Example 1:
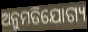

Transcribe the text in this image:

ଅନୁମତିଯୋଗ୍ୟ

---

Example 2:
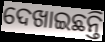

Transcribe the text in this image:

ଦେଖାଇଛନ୍ତି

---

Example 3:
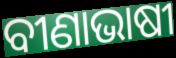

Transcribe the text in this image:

ବୀଣାଭାଷୀ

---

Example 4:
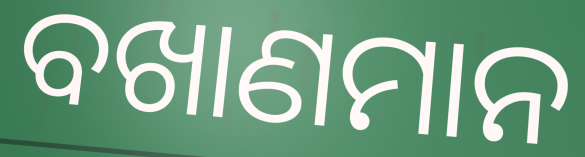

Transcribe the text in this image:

ବଖାଣମାନ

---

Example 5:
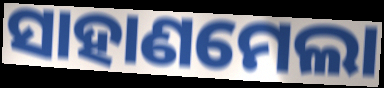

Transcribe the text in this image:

ସାହାଣମେଲା